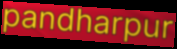
pandharpur